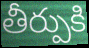
తీర్పుకి